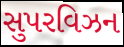
સુપરવિઝન